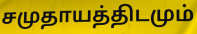
சமுதாயத்திடமும்